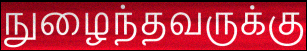
நுழைந்தவருக்கு